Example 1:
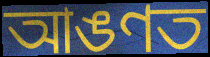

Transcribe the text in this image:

আঙণত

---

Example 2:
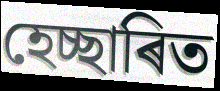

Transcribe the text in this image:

হেচ্ছাৰিত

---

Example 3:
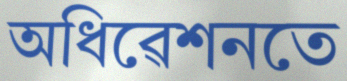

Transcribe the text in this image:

অধিৱেশনতে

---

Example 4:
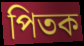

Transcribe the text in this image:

পিতক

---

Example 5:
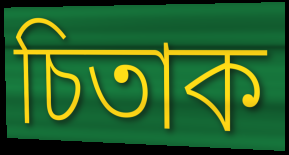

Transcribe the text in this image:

চিতাক